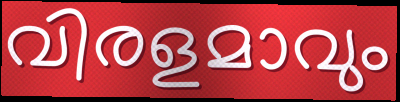
വിരളമാവും